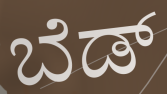
ಬೆಡ್